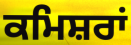
ਕਮਿਸ਼ਰਾਂ